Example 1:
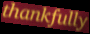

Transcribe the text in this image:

thankfully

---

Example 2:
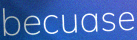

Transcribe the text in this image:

becuase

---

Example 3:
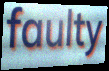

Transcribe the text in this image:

faulty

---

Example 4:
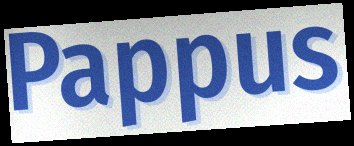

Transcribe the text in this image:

Pappus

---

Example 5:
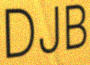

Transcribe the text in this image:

DJB